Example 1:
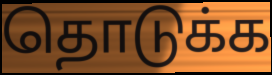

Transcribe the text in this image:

தொடுக்க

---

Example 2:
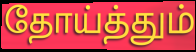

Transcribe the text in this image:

தோய்த்தும்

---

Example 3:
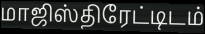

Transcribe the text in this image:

மாஜிஸ்திரேட்டிடம்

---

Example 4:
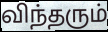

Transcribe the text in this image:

விந்தரும்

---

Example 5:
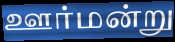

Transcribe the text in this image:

ஊர்மன்று